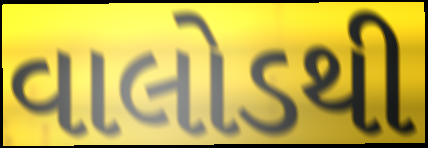
વાલોડથી